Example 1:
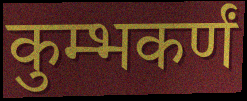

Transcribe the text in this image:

कुम्भकर्णं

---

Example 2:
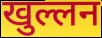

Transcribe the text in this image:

खुल्लन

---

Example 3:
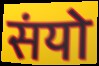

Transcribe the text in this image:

संयो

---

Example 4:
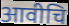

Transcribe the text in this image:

आवीचि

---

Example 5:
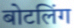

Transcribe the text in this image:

बोटलिंग